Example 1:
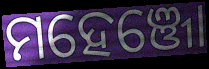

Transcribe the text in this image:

ମହେଞ୍ଜୋ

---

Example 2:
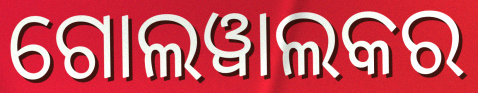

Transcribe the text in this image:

ଗୋଲୱାଲକର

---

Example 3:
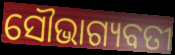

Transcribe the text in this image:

ସୌଭାଗ୍ୟବତୀ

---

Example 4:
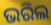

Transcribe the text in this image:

ଭରିଲ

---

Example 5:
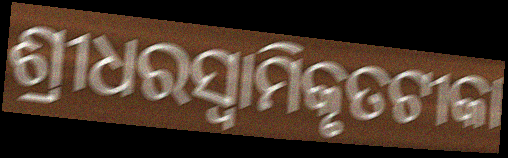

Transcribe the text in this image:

ଶ୍ରୀଧରସ୍ଵାମିକୃତଟୀକା